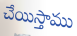
చేయిస్తాము